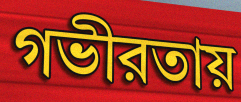
গভীরতায়